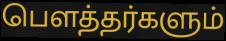
பௌத்தர்களும்